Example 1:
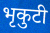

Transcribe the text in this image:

भृकुटी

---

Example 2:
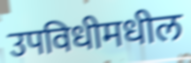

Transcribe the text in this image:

उपविधीमधील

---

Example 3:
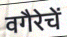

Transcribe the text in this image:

वगैरेचें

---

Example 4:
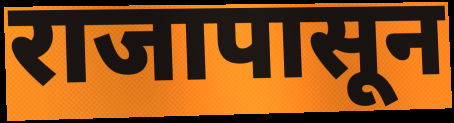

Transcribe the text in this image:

राजापासून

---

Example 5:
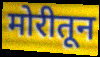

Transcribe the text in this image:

मोरीतून